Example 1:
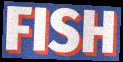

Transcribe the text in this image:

FISH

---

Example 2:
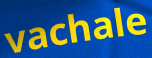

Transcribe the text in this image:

vachale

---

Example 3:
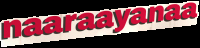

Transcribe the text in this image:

naaraayanaa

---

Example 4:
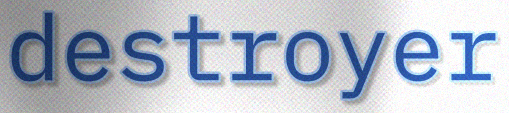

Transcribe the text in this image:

destroyer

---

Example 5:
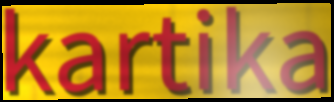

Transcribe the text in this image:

kartika